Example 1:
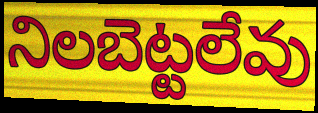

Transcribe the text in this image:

నిలబెట్టలేవు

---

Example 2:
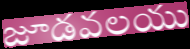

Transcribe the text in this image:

జూడవలయు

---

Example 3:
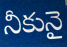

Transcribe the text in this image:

నీకునై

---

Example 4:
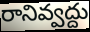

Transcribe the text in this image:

రానివ్వద్దు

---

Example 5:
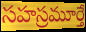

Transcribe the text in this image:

సహస్రమూర్తే